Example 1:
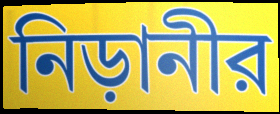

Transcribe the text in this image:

নিড়ানীর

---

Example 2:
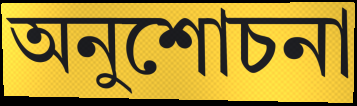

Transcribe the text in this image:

অনুশোচনা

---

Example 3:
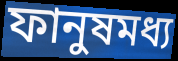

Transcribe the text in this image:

ফানুষমধ্য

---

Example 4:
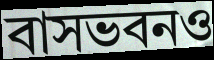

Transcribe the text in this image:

বাসভবনও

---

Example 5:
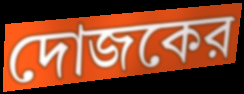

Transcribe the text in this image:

দোজকের